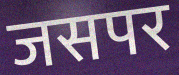
जसपर